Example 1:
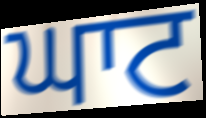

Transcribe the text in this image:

ਘਾਟ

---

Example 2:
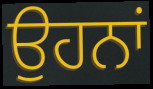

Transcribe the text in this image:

ਉਹਨਾਂ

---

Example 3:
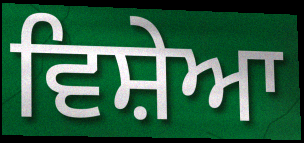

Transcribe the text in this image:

ਵਿਸ਼ੇਆ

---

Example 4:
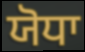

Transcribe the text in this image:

ਯੋਧਾ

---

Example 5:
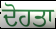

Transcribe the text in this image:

ਦੋਹਤਾ